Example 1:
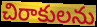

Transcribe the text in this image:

చిరాకులను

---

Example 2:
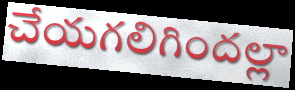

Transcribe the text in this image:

చేయగలిగిందల్లా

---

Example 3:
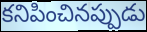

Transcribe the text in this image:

కనిపించినప్పుడు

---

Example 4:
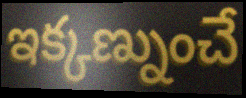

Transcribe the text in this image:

ఇక్కణ్నుంచే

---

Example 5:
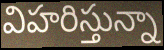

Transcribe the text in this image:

విహరిస్తున్నా